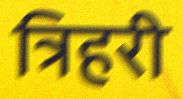
त्रिहरी